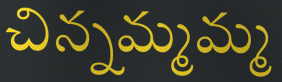
చిన్నమ్మమ్మ